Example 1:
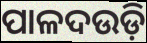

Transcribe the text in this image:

ପାଳଦଉଡ଼ି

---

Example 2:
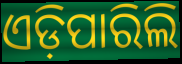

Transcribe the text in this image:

ଏଡ଼ିପାରିଲି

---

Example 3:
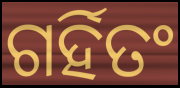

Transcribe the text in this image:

ଗର୍ହିତଂ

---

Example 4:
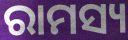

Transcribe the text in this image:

ରାମସ୍ୟ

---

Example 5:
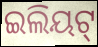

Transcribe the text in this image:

ଇଲିୟଟ୍